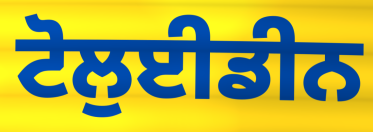
ਟੋਲੁਈਡੀਨ